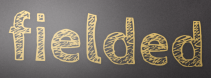
fielded